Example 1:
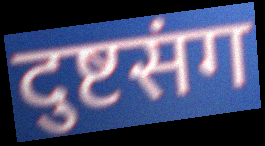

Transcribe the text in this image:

दुष्टसंग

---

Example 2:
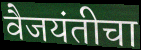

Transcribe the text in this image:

वैजयंतीचा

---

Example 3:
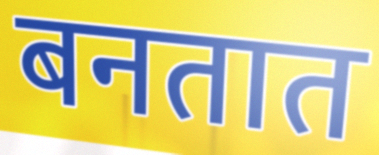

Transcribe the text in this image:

बनतात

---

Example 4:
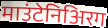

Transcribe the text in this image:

माउंटेनिअिरग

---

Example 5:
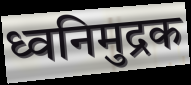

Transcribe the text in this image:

ध्वनिमुद्रक